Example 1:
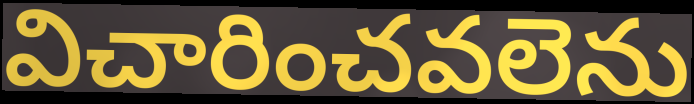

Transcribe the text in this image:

విచారించవలెను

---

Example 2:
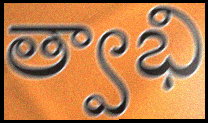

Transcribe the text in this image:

త్వాభి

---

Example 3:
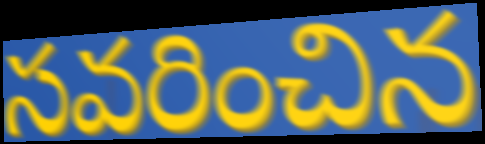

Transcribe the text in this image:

సవరించిన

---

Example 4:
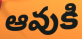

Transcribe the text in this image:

ఆవుకి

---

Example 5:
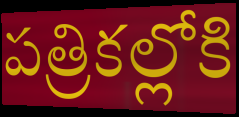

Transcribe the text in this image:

పత్రికల్లోకి